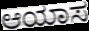
ಆಯಾಸ